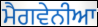
ਮੈਗਵੇਨੀਆ